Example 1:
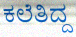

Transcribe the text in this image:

ಕಲೆತಿದ್ದ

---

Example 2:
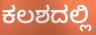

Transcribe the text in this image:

ಕಲಶದಲ್ಲಿ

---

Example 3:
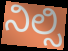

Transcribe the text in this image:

ನಿಲ್ಸಿ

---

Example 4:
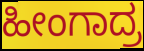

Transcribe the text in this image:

ಹೀಂಗಾದ್ರ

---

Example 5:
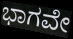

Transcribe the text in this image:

ಭಾಗವೇ